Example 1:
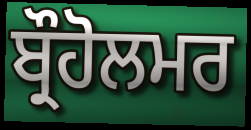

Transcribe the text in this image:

ਬ੍ਰੌਹੋਲਮਰ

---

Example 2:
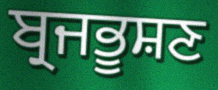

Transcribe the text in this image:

ਬ੍ਰਜਭੂਸ਼ਣ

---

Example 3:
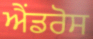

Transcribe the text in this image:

ਐਂਡਰੋਸ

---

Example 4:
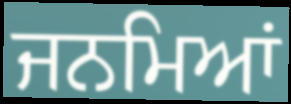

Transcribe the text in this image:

ਜਨਮਿਆਂ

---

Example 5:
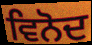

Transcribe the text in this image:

ਵਿਨੋਦ